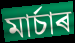
মাৰ্চাৰ